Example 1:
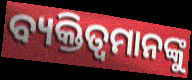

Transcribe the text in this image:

ବ୍ୟକ୍ତିତ୍ବମାନଙ୍କୁ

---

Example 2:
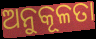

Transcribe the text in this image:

ଅନୁକୂଳତା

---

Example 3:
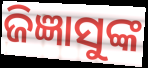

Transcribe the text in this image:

ଜିଜ୍ଞାସୁଙ୍କ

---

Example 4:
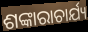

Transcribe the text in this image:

ଶଙ୍କାରାଚାର୍ଯ୍ୟ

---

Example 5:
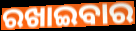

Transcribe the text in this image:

ରଖାଇବାର